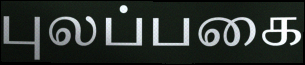
புலப்பகை